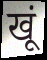
खूं